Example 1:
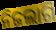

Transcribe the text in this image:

ନିଜଲାଗି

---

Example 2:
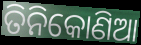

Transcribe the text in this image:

ତିନିକୋଣିଆ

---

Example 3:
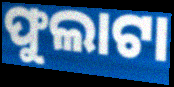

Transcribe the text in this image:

ଫୁଲାଟା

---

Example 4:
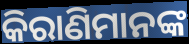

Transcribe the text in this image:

କିରାଣିମାନଙ୍କ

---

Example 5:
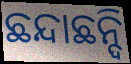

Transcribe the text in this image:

ଛନ୍ଦାଛନ୍ଦି